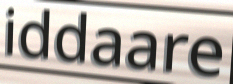
iddaare